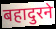
बहादुरने